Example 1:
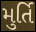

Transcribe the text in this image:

મુર્તિ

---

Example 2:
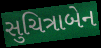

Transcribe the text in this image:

સુચિત્રાબેન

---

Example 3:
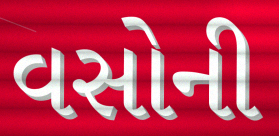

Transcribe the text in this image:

વસોની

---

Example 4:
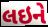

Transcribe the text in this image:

લઇને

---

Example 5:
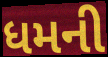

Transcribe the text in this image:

ધમની